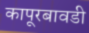
कापूरबावडी